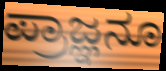
ಪ್ರಾಜ್ಞನೂ